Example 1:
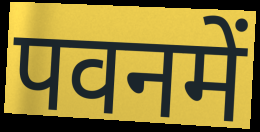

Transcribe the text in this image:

पवनमें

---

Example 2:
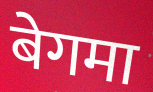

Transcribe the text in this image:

बेगमा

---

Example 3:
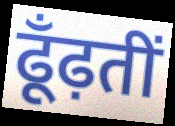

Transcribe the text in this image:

ढूँढ़तीं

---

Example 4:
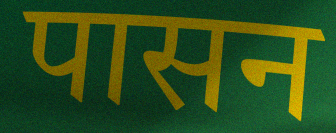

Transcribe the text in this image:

पासन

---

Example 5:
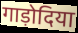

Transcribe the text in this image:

गाड़ोदिया